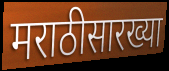
मराठीसारख्या